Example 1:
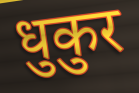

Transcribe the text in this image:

धुकुर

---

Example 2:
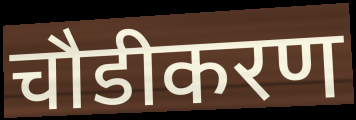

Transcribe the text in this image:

चौडीकरण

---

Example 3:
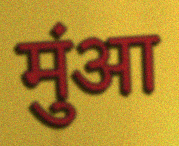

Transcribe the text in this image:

मुंआ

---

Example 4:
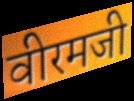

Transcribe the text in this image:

वीरमजी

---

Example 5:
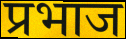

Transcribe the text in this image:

प्रभाज